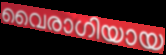
വൈരാഗിയായ